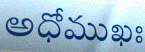
అధోముఖః